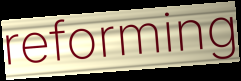
reforming